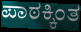
ಪಾಠಕ್ಕಿಂತ